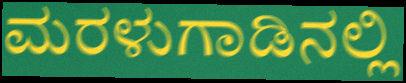
ಮರಳುಗಾಡಿನಲ್ಲಿ